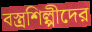
বস্ত্রশিল্পীদের